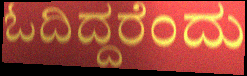
ಓದಿದ್ದರೆಂದು